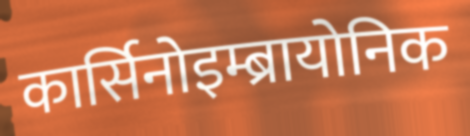
कार्सिनोइम्ब्रायोनिक